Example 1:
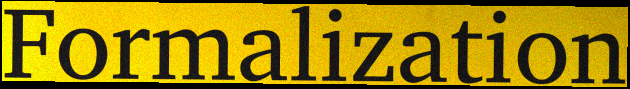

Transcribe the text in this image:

Formalization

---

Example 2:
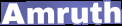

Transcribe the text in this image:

Amruth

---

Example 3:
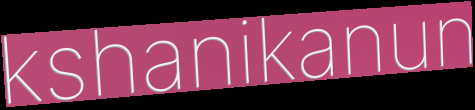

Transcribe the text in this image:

kshanikanun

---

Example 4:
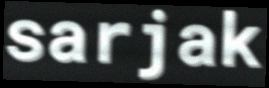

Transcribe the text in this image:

sarjak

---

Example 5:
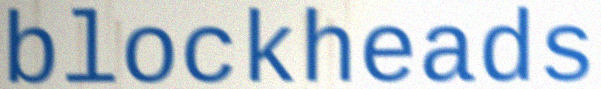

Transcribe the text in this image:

blockheads